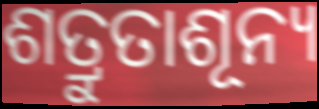
ଶତ୍ରୁତାଶୂନ୍ୟ